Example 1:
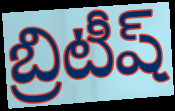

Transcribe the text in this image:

బ్రిటీష్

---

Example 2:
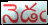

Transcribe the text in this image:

నెడఁ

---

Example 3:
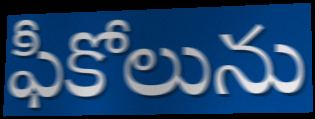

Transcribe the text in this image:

ఫీకోలును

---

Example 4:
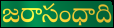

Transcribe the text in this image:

జరాసంధాది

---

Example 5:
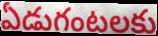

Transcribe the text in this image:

ఏడుగంటలకు